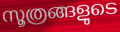
സൂത്രങ്ങളുടെ